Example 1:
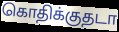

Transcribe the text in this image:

கொதிக்குதடா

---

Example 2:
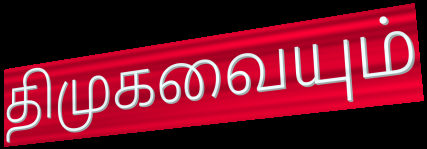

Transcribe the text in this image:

திமுகவையும்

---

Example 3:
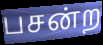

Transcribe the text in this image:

பசன்ற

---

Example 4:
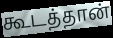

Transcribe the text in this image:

கூடத்தான்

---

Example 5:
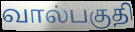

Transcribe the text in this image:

வால்பகுதி